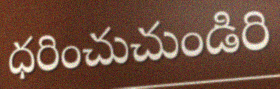
ధరించుచుండిరి